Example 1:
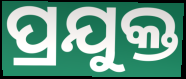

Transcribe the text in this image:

ପ୍ରଯୁକ୍ତ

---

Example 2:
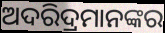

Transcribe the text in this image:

ଅଦରିଦ୍ରମାନଙ୍କର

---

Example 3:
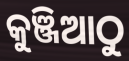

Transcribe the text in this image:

କୁଞ୍ଜିଆଠୁ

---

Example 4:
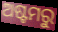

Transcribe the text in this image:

ଅଷ୍ଟମରୁ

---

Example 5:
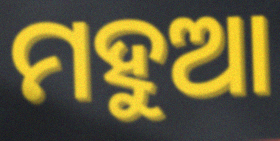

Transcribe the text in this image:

ମହୁଆ